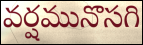
వర్షమునొసగి